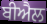
ਬੀਐਲ